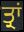
ਤ੍ਰਾਂ